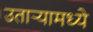
उतार्‍यामध्ये